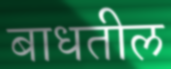
बाधतील